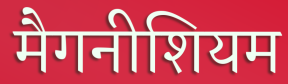
मैगनीशियम